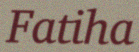
Fatiha